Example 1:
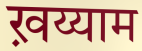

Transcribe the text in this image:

ख़य्याम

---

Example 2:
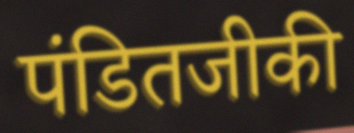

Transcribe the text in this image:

पंडितजीकी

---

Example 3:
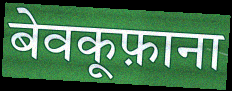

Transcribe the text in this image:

बेवकूफ़ाना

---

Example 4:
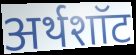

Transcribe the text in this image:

अर्थशॉट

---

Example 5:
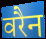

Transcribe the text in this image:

वरैन